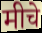
मीचे